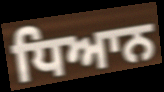
ਧਿਆਨ